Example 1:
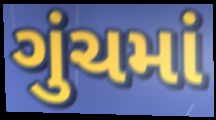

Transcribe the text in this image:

ગુંચમાં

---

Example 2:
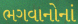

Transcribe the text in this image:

ભગવાનોનાં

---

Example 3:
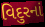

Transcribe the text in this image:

વિદુરનાં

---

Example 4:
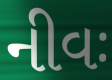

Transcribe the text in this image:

નીવઃ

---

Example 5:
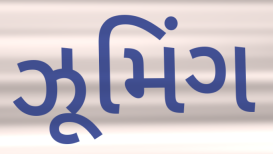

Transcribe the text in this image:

ઝૂમિંગ